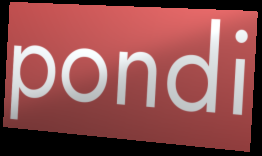
pondi